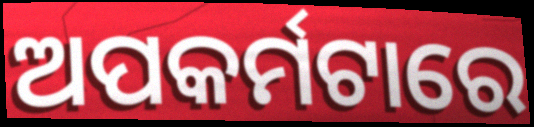
ଅପକର୍ମଟାରେ